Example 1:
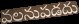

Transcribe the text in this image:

వలనుపడదు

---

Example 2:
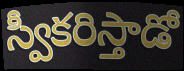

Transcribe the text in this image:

స్వీకరిస్తాడో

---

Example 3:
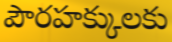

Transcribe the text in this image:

పౌరహక్కులకు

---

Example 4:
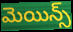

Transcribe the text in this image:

మెయిన్స్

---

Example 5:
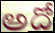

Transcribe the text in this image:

అదో